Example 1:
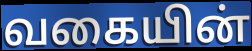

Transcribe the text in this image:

வகையின்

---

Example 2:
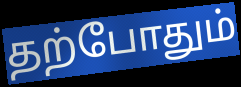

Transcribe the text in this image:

தற்போதும்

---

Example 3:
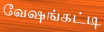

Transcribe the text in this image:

வேஷங்கட்டி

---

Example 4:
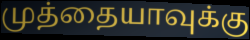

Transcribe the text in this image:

முத்தையாவுக்கு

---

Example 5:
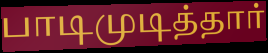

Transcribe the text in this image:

பாடிமுடித்தார்